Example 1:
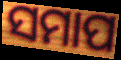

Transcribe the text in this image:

ସମାପ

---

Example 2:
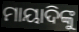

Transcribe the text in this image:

ମାୟାଦିଙ୍କୁ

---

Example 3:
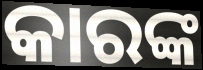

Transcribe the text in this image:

କାରଙ୍କ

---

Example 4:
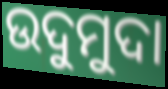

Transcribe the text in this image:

ଉଦୁମୁଦା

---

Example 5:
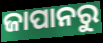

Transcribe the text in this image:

ଜାପାନରୁ